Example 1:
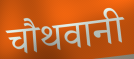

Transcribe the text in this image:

चौथवानी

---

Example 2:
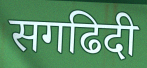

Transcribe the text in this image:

सगढिदी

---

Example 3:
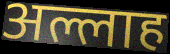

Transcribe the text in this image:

अल्लाह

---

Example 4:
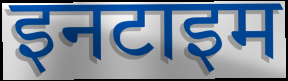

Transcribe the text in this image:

इनटाइम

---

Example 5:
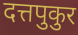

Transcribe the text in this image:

दत्तपुकुर